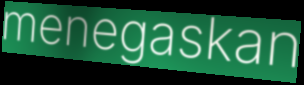
menegaskan